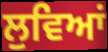
ਲੁਵਿਆਂ